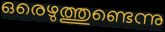
ഒരെഴുത്തുണ്ടെന്നു